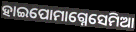
ହାଇପୋମାଗ୍ନେସେମିଆ